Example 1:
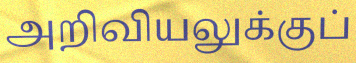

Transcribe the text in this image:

அறிவியலுக்குப்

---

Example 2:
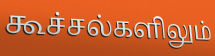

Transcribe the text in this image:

கூச்சல்களிலும்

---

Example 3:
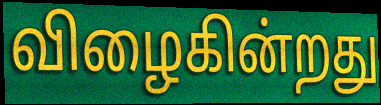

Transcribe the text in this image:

விழைகின்றது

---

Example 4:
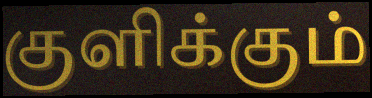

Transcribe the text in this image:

குளிக்கும்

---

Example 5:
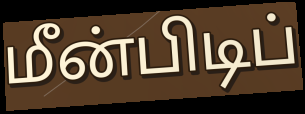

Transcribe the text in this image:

மீன்பிடிப்